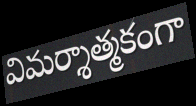
విమర్శాత్మకంగా